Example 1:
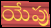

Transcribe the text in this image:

యేపు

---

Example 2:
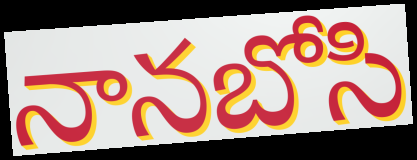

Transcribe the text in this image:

నానబోసి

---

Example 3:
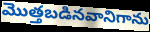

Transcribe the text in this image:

మొత్తబడినవానిగాను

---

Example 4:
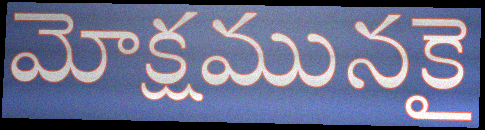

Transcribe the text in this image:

మోక్షమునకై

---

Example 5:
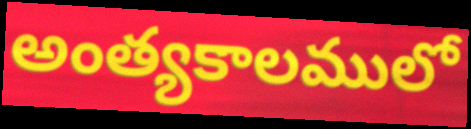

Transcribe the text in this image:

అంత్యకాలములో